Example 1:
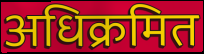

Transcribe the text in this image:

अधिक्रमित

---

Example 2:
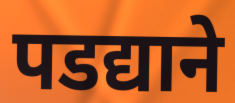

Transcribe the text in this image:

पडद्याने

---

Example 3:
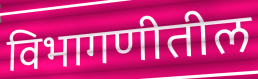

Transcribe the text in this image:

विभागणीतील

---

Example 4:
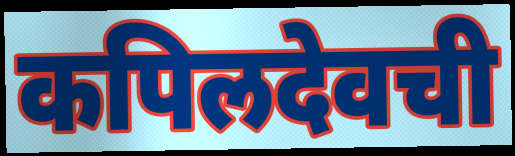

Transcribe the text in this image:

कपिलदेवची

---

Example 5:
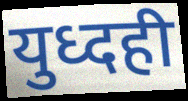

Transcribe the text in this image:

युध्दही